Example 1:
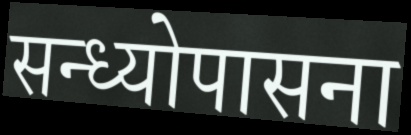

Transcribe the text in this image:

सन्ध्योपासना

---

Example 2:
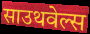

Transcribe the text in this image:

साउथवेल्स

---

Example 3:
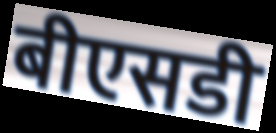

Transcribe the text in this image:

बीएसडी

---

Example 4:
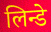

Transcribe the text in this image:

लिन्डे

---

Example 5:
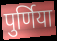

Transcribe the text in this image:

पुर्णिया